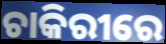
ଚାକିରୀରେ